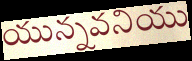
యున్నవనియు